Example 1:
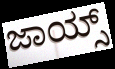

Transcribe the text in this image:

ಜಾಯ್ಸ್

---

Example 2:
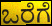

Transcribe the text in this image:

ಒರೆಗೆ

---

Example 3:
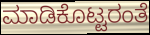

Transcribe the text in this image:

ಮಾಡಿಕೊಟ್ಟರಂತೆ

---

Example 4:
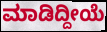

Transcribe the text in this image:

ಮಾಡಿದ್ದೀಯೆ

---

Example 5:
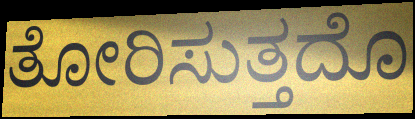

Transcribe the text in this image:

ತೋರಿಸುತ್ತದೊ